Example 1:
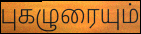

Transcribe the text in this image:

புகழுரையும்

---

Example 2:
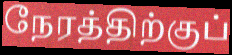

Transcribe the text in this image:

நேரத்திற்குப்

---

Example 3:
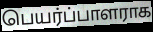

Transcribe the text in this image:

பெயர்ப்பாளராக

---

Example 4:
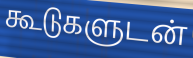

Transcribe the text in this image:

கூடுகளுடன்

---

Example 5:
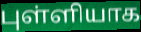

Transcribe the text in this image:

புள்ளியாக